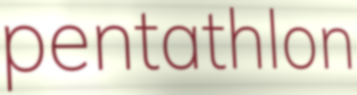
pentathlon